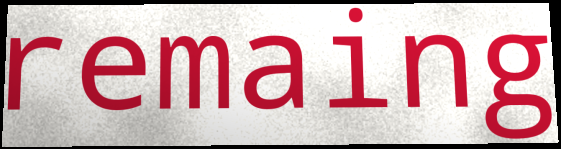
remaing